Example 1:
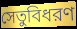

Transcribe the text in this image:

সেতুবিধরণ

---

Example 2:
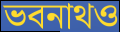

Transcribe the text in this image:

ভবনাথও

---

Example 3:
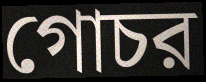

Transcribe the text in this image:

গোচর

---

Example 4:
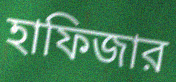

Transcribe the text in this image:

হাফিজার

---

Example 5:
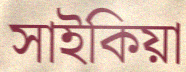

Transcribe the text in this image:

সাইকিয়া